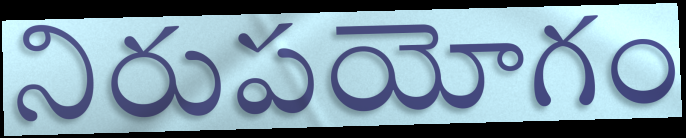
నిరుపయోగం